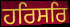
ਹਰਿਸਰਿ